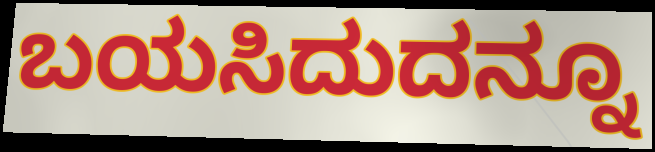
ಬಯಸಿದುದನ್ನೂ